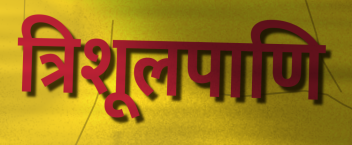
त्रिशूलपाणि